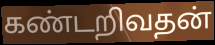
கண்டறிவதன்